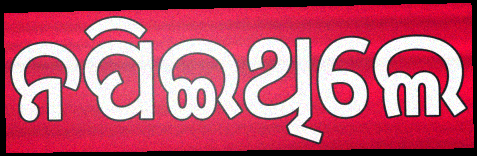
ନପିଇଥିଲେ